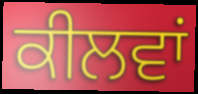
ਕੀਲਵਾਂ